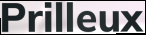
Prilleux